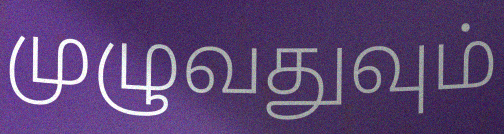
முழுவதுவும்